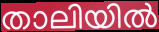
താലിയിൽ